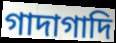
গাদাগাদি